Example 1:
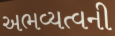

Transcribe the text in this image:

અભવ્યત્વની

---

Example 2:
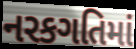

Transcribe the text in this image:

નરકગતિમાં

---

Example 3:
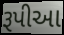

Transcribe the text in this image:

રૂપીઆ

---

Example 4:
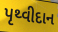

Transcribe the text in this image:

પૃથ્વીદાન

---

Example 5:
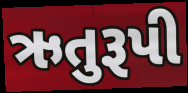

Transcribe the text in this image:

ઋતુરૂપી